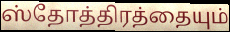
ஸ்தோத்திரத்தையும்